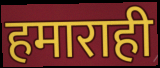
हमाराही